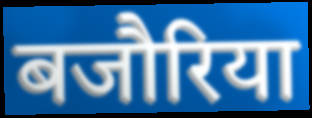
बजौरिया